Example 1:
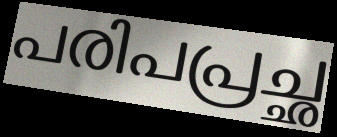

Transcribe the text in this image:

പരിപപ്രച്ഛ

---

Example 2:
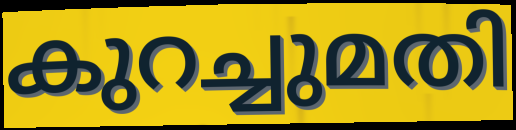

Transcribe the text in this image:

കുറച്ചുമതി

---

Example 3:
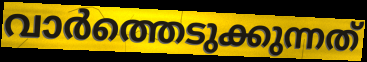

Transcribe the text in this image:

വാർത്തെടുക്കുന്നത്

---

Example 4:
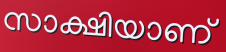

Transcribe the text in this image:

സാക്ഷിയാണ്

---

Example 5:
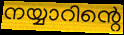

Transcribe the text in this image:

നയ്യാറിന്റെ